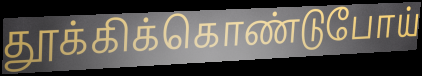
தூக்கிக்கொண்டுபோய்